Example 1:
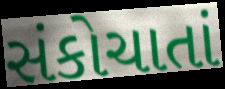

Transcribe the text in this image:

સંકોચાતાં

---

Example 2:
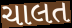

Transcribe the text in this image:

ચાલત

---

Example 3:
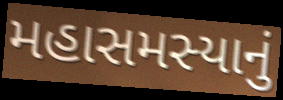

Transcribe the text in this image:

મહાસમસ્યાનું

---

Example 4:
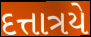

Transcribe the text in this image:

દત્તાત્રયે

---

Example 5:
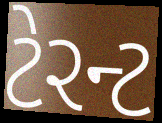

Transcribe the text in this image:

ટેરન્ટ